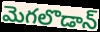
మెగలొడాన్